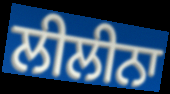
ਲੀਲੀਨਾ